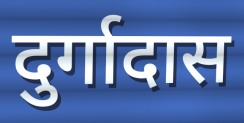
दुर्गादास